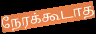
நேரக்கூடாத